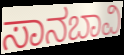
ಸಾನಬಾವಿ